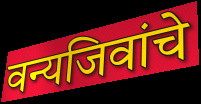
वन्यजिवांचे